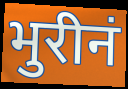
भुरीनं